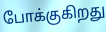
போக்குகிறது